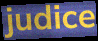
judice